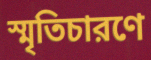
স্মৃতিচারণে